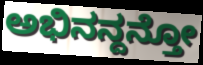
ಅಭಿನನ್ದನ್ತೋ